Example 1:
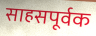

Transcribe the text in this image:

साहसपूर्वक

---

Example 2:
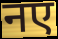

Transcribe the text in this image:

नए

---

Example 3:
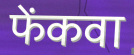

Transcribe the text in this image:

फेंकवा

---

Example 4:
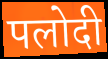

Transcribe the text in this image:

पलोदी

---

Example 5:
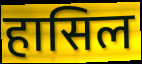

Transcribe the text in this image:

हासिल